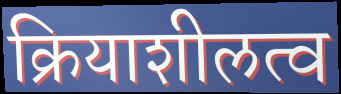
क्रियाशीलत्व